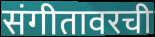
संगीतावरची